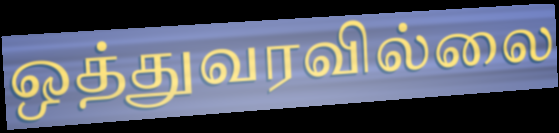
ஒத்துவரவில்லை